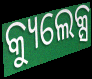
କ୍ୟୁଲେକ୍ସ